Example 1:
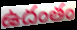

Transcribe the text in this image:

ఉదంతం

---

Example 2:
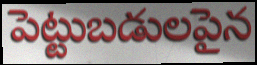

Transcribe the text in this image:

పెట్టుబడులపైన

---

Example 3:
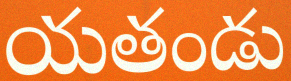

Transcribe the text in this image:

యతండు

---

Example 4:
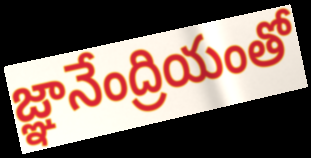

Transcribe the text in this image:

జ్ఞానేంద్రియంతో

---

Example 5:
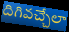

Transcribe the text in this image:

దిగివచ్చేలా